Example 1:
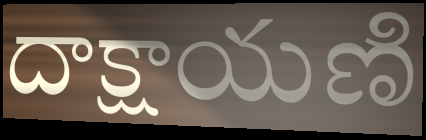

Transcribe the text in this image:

దాక్షాయణి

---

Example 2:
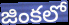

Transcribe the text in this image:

జింకలో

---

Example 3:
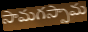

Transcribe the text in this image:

సామగస్సామ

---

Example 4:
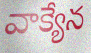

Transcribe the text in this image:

వాక్యేన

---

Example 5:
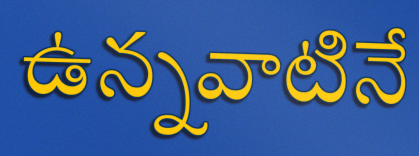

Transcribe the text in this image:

ఉన్నవాటినే